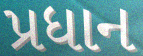
પ્રધાન